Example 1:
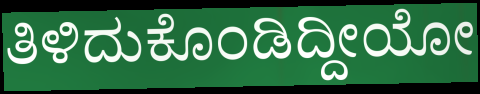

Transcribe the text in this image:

ತಿಳಿದುಕೊಂಡಿದ್ದೀಯೋ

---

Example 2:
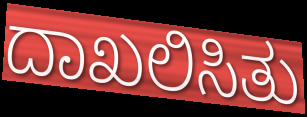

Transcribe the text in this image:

ದಾಖಲಿಸಿತು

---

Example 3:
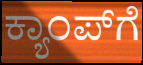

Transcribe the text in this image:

ಕ್ಯಾಂಪ್‍ಗೆ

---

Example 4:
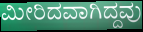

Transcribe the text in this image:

ಮೀರಿದವಾಗಿದ್ದವು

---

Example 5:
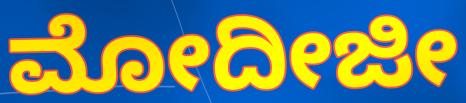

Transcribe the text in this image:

ಮೋದೀಜೀ